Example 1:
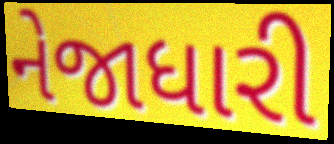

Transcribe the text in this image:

નેજાધારી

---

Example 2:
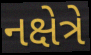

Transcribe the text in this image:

નક્ષેત્રે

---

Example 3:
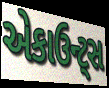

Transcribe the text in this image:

એકાઉન્ટ્સ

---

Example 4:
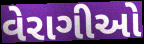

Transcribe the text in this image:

વેરાગીઓ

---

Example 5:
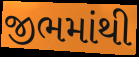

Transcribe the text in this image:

જીભમાંથી